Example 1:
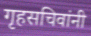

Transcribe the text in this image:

गृहसचिवांनी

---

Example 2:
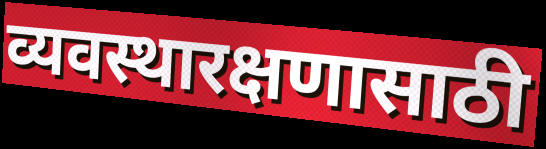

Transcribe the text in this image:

व्यवस्थारक्षणासाठी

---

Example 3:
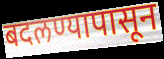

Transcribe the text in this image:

बदलण्यापासून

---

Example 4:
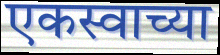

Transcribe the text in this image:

एकस्वाच्या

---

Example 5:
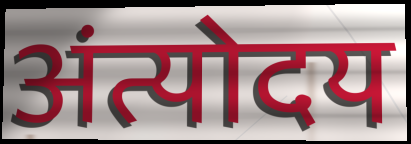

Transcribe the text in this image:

अंत्योदय